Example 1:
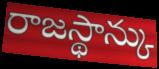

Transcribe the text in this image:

రాజస్థాన్కు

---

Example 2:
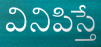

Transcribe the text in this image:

వినిపిస్తే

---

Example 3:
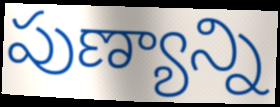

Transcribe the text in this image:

పుణ్యాన్ని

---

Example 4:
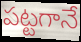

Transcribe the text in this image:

పట్టగానే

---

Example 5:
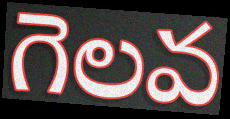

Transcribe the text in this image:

గెలవ